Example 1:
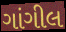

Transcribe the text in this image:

ગાંગીલ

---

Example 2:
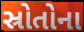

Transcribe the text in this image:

સ્રોતોના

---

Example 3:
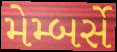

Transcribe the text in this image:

મેમ્બર્સે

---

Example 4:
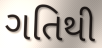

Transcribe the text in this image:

ગતિથી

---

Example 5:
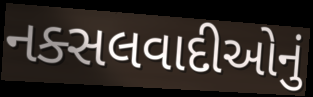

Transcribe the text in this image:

નક્સલવાદીઓનું